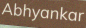
Abhyankar